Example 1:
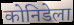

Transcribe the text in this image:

कोनिडेला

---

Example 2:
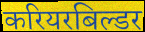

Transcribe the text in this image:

करियरबिल्डर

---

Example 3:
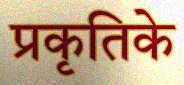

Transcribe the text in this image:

प्रकृतिके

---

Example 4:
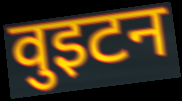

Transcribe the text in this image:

वुइटन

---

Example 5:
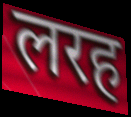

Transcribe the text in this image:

लरह